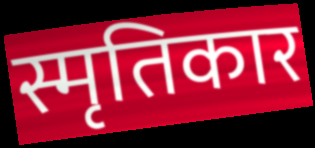
स्मृतिकार